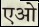
एओ